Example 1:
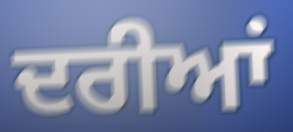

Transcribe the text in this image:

ਦਰੀਆਂ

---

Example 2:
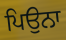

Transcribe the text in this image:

ਪਿਉਨਾ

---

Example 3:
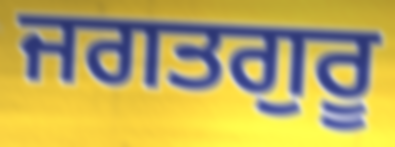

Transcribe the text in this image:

ਜਗਤਗੁਰੂ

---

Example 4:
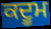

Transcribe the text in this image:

ਕਦੂਮ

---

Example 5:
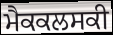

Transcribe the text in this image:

ਮੈਕਕਲਸਕੀ